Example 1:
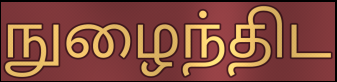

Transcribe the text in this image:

நுழைந்திட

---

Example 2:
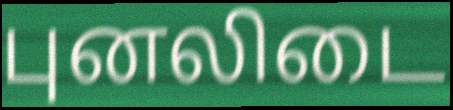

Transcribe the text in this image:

புனலிடை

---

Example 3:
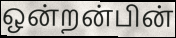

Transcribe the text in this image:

ஒன்றன்பின்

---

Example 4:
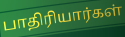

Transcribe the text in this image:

பாதிரியார்கள்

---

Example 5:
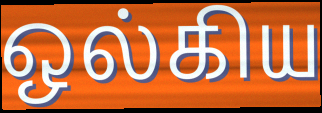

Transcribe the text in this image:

ஒல்கிய